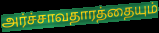
அர்ச்சாவதாரத்தையும்